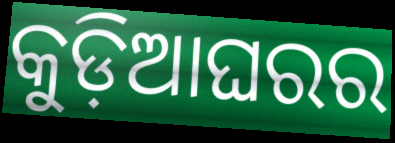
କୁଡ଼ିଆଘରର